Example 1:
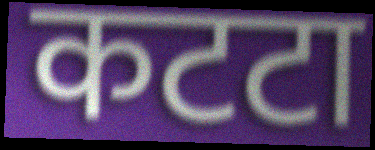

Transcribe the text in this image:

कटटा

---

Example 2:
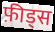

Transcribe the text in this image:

फ़ीड्स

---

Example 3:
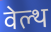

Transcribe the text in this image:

वेल्‍थ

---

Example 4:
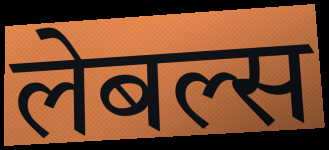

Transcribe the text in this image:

लेबल्स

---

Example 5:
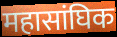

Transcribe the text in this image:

महासांघिक